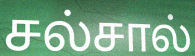
சல்சால்